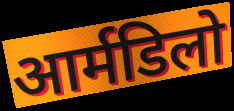
आर्मडिलो